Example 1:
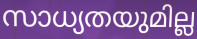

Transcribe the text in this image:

സാധ്യതയുമില്ല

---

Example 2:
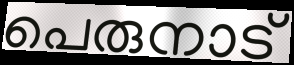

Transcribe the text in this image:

പെരുനാട്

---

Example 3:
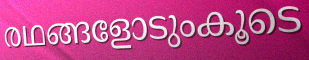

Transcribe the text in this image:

രഥങ്ങളോടുംകൂടെ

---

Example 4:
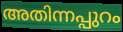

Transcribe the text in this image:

അതിന്നപ്പുറം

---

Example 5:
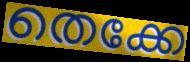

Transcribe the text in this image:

തെക്കേ